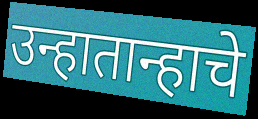
उन्हातान्हाचे